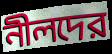
নীলদের